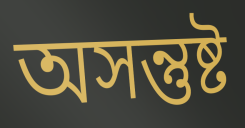
অসন্তুষ্ট